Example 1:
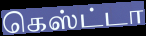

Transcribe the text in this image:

கெஸ்ட்டா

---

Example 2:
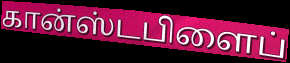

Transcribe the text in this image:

கான்ஸ்டபிளைப்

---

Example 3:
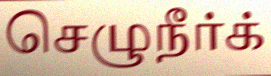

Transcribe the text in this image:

செழுநீர்க்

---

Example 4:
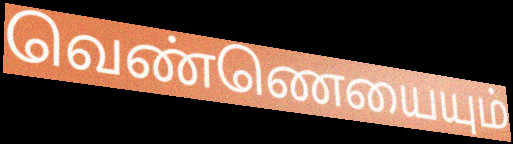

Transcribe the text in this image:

வெண்ணெயையும்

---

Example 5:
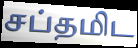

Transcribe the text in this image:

சப்தமிட